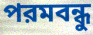
পরমবন্ধু